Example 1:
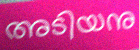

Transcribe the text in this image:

അടിയനു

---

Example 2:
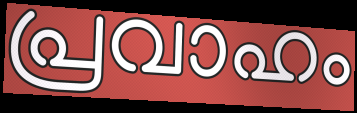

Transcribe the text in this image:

പ്രവാഹം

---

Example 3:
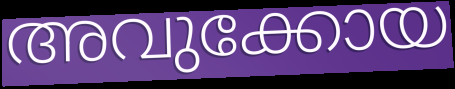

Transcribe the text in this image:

അവുക്കോയ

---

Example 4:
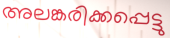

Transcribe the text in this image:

അലങ്കരിക്കപ്പെട്ടു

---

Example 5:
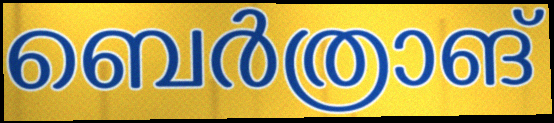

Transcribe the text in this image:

ബെർത്രാങ്